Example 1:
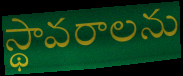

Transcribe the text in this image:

స్థావరాలను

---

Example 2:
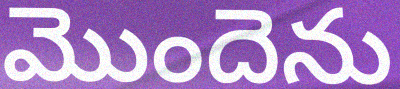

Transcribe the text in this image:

మొందెను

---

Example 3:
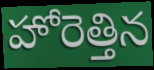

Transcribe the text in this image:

హోరెత్తిన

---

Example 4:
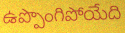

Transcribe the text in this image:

ఉప్పొంగిపోయేది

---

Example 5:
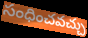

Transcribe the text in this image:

సంధించవచ్చు